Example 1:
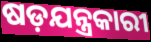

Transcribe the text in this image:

ଷଡ଼ଯନ୍ତ୍ରକାରୀ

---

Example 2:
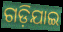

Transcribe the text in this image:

ଗଡ଼ିଯାଇ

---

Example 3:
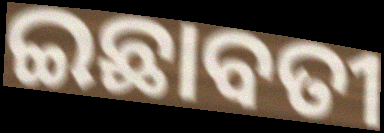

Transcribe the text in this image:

ଇଛାବତୀ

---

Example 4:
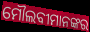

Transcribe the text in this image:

ମୌଲବୀମାନଙ୍କର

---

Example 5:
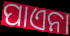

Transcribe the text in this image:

ପାଏନା